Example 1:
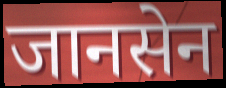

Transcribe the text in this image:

जानसेन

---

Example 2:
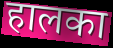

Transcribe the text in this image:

हालका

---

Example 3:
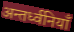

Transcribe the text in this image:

अन्तर्ध्वनियाँ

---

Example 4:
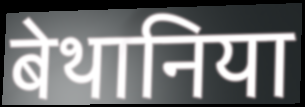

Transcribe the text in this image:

बेथानिया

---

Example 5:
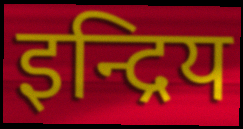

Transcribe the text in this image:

इन्द्रिय